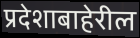
प्रदेशाबाहेरील